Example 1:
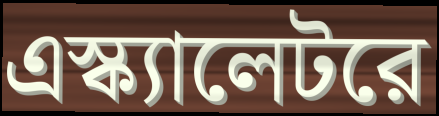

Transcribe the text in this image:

এস্ক্যালেটরে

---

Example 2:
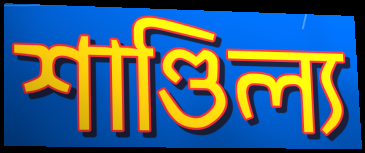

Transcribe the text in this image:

শাণ্ডিল্য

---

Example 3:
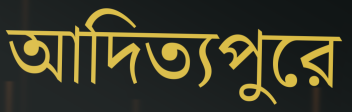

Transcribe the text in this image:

আদিত্যপুরে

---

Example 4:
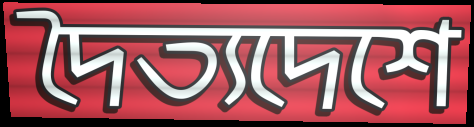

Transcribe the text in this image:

দৈত্যদেশে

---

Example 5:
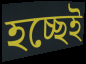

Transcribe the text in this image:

হচ্ছেই